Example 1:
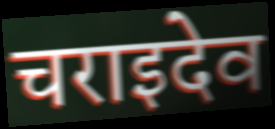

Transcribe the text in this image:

चराइदेव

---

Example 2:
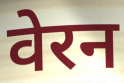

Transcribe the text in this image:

वेरन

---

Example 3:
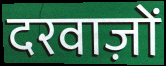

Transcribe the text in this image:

दरवाज़ों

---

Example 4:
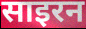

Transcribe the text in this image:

साइरन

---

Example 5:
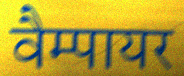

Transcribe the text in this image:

वैम्पायर